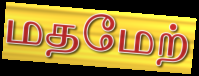
மதமேற்